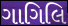
ગાગિલિ